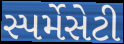
સ્પર્મેસેટી